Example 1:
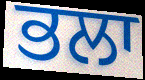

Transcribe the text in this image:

ਭਲਾ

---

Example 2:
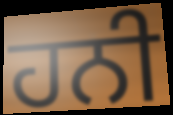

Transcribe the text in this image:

ਹਨੀ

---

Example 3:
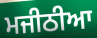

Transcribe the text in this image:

ਮਜੀਠੀਆ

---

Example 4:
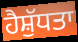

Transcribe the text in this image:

ਹੈਸ਼ੁੱਧਤਾ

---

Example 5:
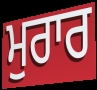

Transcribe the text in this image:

ਮੁਰਾਰ